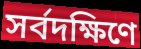
সর্বদক্ষিণে